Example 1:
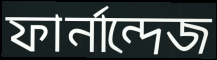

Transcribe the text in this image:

ফার্নান্দেজ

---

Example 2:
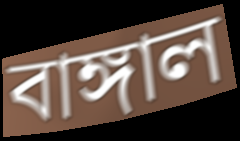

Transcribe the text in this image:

বাঙ্গাল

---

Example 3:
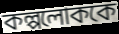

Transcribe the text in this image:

কল্পলোককে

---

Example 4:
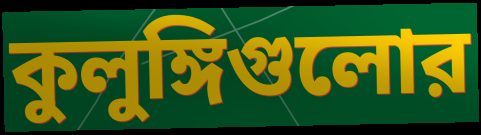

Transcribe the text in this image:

কুলুঙ্গিগুলোর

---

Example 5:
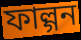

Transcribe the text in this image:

ফাল্গন